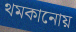
থমকানোয়